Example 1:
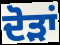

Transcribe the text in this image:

ਦੋੜਾਂ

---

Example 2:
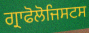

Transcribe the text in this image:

ਗ੍ਰਾਫੋਲੋਜਿਸਟਸ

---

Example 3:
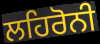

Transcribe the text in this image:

ਲਹਿਰੋਨੀ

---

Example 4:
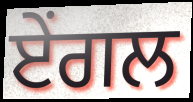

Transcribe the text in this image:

ਏਂਗਲ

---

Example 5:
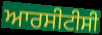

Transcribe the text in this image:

ਆਰਸੀਟੀਸੀ